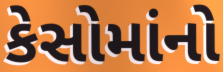
કેસોમાંનો